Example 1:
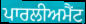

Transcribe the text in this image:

ਪਾਰਲੀਅਮੈਂਟ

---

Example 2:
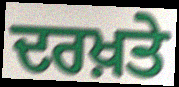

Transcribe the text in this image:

ਦਰਖ਼ਤੇ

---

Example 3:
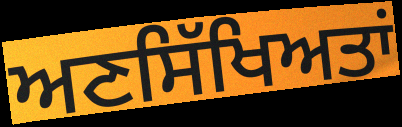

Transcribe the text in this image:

ਅਣਸਿੱਖਿਅਤਾਂ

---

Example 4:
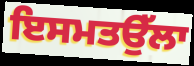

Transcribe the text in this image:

ਇਸਮਤਉੱਲਾ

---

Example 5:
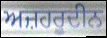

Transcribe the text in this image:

ਅਜ਼ਹਰੂਦੀਨ